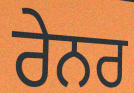
ਰੇਨਰ